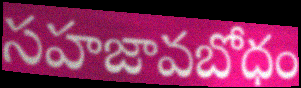
సహజావబోధం